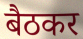
बैठकर